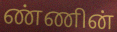
ண்ணின்